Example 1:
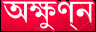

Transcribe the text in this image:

অক্ষুণ্ন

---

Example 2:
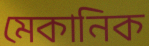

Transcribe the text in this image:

মেকানিক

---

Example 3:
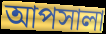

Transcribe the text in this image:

আপসালা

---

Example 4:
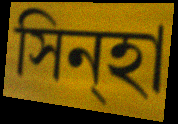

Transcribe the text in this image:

সিন্হা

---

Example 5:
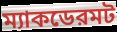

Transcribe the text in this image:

ম্যাকডেরমট